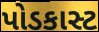
પોડકાસ્ટ